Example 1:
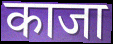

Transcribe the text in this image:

काजा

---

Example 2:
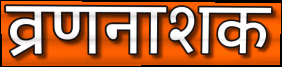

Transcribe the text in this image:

व्रणनाशक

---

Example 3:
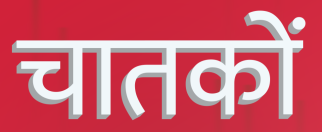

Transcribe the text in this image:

चातकों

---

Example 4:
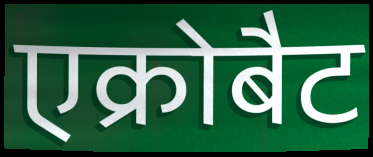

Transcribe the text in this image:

एक्रोबैट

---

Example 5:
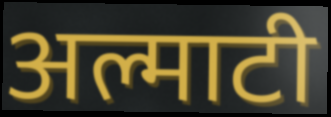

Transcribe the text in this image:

अल्माटी